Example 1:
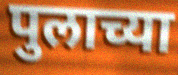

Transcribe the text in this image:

पुलाच्या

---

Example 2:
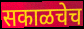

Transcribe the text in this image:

सकाळचेच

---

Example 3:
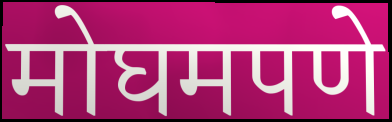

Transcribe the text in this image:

मोघमपणे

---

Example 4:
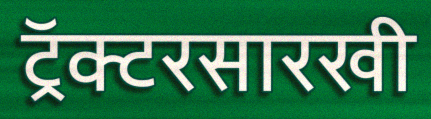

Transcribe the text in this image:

ट्रॅक्टरसारखी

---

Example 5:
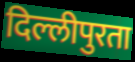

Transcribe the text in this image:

दिल्लीपुरता